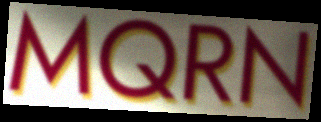
MQRN